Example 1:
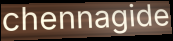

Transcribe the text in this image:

chennagide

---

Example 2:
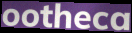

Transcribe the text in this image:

ootheca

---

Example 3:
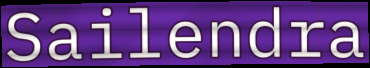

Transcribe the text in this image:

Sailendra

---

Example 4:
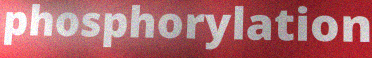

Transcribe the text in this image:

phosphorylation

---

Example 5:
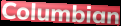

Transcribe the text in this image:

Columbian